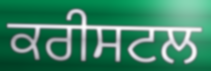
ਕਰੀਸਟਲ